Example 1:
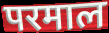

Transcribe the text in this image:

परमाल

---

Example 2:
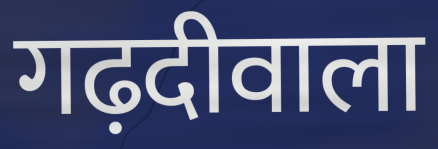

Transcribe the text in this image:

गढ़दीवाला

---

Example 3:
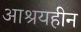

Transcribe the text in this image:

आश्रयहीन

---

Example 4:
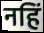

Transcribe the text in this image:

नहिं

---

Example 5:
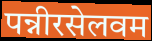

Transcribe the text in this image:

पन्नीरसेलवम